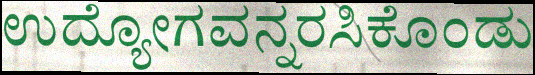
ಉದ್ಯೋಗವನ್ನರಸಿಕೊಂಡು